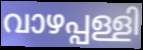
വാഴപ്പള്ളി